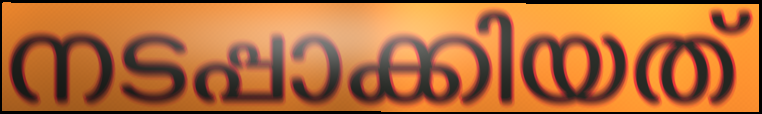
നടപ്പാക്കിയത്